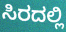
ಸಿರದಲ್ಲಿ